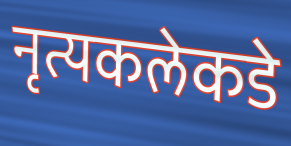
नृत्यकलेकडे